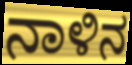
ನಾಳಿನ